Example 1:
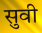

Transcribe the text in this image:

सुवी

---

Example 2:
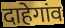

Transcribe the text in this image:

दाहेगांव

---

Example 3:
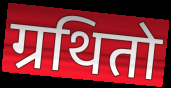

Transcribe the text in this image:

ग्रथितो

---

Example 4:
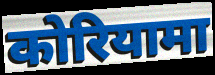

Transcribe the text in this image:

कोरियामा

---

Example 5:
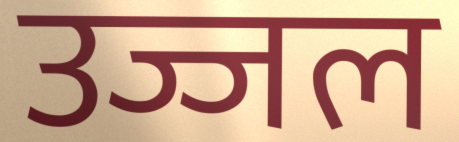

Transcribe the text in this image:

उज्जल